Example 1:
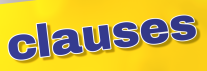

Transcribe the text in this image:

clauses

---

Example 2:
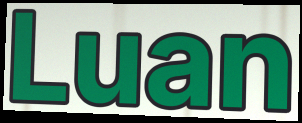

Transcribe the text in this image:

Luan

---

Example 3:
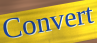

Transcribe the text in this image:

Convert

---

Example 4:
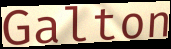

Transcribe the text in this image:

Galton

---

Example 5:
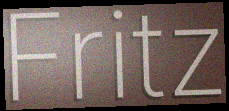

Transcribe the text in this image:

Fritz